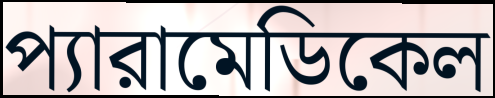
প্যারামেডিকেল